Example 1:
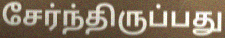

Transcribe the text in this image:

சேர்ந்திருப்பது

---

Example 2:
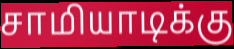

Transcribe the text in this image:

சாமியாடிக்கு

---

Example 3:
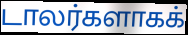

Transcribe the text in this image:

டாலர்களாகக்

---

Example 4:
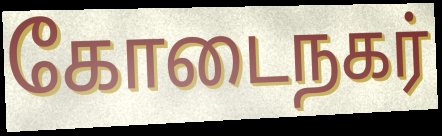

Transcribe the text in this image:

கோடைநகர்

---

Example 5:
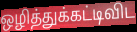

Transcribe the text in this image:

ஒழித்துக்கட்டிவிட